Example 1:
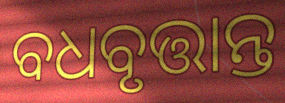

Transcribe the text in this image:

ବଧବୃତ୍ତାନ୍ତ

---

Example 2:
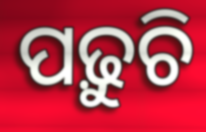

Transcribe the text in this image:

ପଢ଼ୁଚି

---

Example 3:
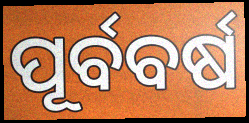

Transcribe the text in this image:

ପୂର୍ବବର୍ଷ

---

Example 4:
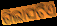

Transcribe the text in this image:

ଗିଲାସଟିଏ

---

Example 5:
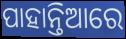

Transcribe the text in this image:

ପାହାନ୍ତିଆରେ